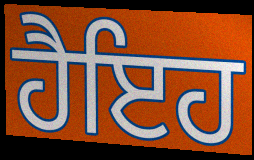
ਹੈਇਹ